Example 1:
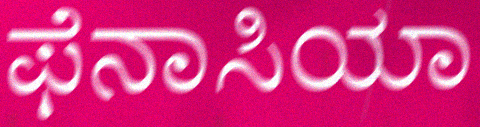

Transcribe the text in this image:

ಫೆನಾಸಿಯಾ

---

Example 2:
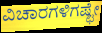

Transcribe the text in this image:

ವಿಚಾರಗಳಿಗಷ್ಟೇ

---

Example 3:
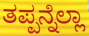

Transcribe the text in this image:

ತಪ್ಪನ್ನೆಲ್ಲಾ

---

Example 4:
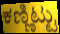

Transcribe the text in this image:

ಕಣ್ಣಿಟ್ಟು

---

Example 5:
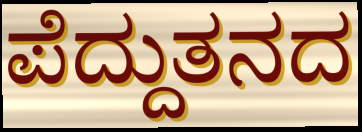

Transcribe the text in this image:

ಪೆದ್ದುತನದ